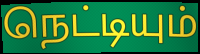
நெட்டியும்